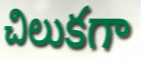
చిలుకగా